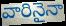
వారినైనా